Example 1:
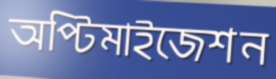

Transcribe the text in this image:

অপ্টিমাইজেশন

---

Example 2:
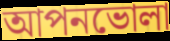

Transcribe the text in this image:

আপনভোলা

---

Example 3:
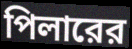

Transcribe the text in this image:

পিলারের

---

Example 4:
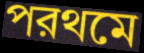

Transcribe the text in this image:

পরথমে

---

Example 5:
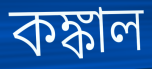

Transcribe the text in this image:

কঙ্কাল